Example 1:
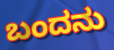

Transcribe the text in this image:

ಬಂದನು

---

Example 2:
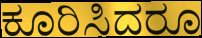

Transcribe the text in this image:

ಕೂರಿಸಿದರೂ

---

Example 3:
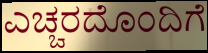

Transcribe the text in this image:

ಎಚ್ಚರದೊಂದಿಗೆ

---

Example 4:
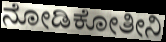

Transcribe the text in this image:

ನೋಡಿಕೋತೀನಿ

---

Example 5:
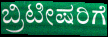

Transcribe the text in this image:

ಬ್ರಿಟೀಷರಿಗೆ